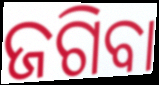
ଜଗିବା